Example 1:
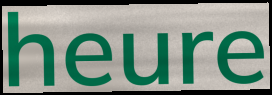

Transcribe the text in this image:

heure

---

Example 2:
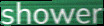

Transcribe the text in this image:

shower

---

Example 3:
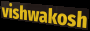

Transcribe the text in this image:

vishwakosh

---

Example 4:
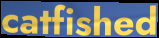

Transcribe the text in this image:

catfished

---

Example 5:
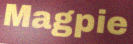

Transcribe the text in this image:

Magpie